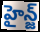
హైన్జ్